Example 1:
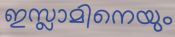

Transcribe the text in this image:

ഇസ്ലാമിനെയും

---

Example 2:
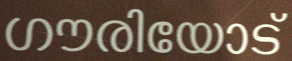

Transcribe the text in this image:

ഗൗരിയോട്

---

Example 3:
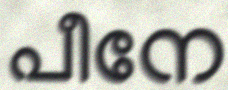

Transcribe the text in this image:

പീനേ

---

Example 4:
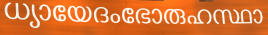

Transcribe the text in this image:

ധ്യായേദംഭോരുഹസ്ഥാ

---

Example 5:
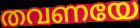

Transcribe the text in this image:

തവണയേ